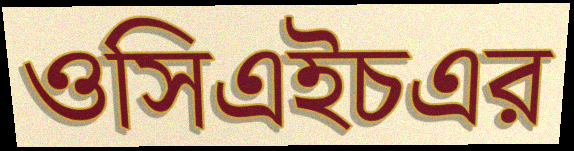
ওসিএইচএর